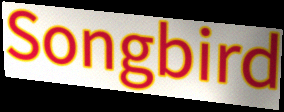
Songbird